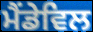
ਮੈਂਡੇਵਿਲ